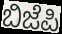
ಬಿಜೆಪಿ